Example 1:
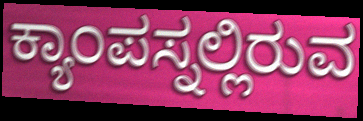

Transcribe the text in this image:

ಕ್ಯಾಂಪಸ್ನಲ್ಲಿರುವ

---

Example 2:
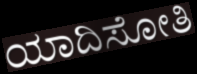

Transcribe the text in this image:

ಯಾದಿಸೋತಿ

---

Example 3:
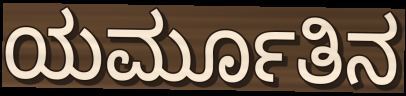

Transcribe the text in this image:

ಯರ್ಮೂತಿನ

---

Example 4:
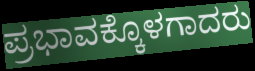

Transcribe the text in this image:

ಪ್ರಭಾವಕ್ಕೊಳಗಾದರು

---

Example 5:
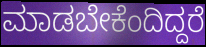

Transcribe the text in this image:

ಮಾಡಬೇಕೆಂದಿದ್ದರೆ